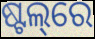
ଷ୍ଟଲ୍‌ରେ